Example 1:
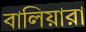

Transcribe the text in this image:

বালিয়ারা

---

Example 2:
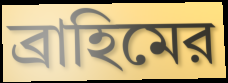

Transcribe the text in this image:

ব্রাহিমের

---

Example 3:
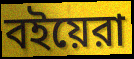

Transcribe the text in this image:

বইয়েরা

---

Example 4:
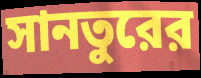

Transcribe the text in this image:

সানতুরের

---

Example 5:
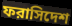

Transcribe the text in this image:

ফরাসিদেশ